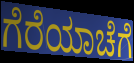
ಗೆರೆಯಾಚೆಗೆ